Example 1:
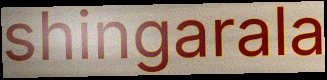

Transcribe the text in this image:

shingarala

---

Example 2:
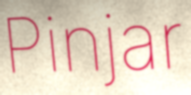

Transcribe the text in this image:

Pinjar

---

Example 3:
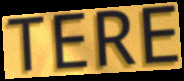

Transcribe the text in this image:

TERE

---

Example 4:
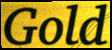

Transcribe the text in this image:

Gold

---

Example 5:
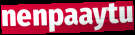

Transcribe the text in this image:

nenpaaytu